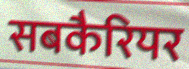
सबकैरियर